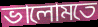
ভালোমতে